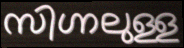
സിഗ്നലുള്ള